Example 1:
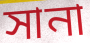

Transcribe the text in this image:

সানা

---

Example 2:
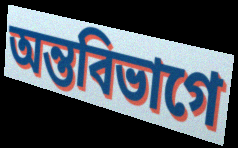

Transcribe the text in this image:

অন্তবিভাগে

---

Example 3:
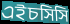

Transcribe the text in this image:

এইচসিসি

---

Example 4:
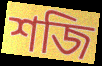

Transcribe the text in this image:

শজি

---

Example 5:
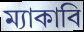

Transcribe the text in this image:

ম্যাকাবি